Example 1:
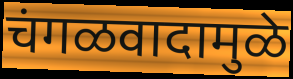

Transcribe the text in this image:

चंगळवादामुळे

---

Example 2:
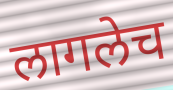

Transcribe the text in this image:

लागलेच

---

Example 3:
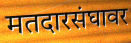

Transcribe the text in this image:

मतदारसंघावर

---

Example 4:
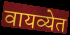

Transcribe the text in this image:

वायव्येत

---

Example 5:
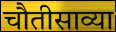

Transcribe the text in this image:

चौतीसाव्या